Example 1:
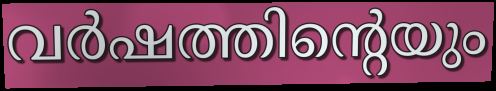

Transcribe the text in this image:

വർഷത്തിന്റെയും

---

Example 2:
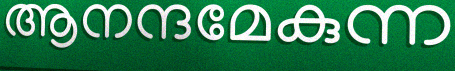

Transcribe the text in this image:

ആനന്ദമേകുന്ന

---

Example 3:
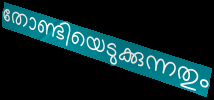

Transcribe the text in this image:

തോണ്ടിയെടുക്കുന്നതും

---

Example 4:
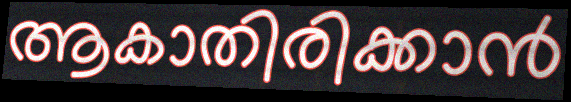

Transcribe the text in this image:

ആകാതിരിക്കാൻ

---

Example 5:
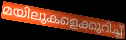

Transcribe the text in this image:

മയിലുകളെക്കുറിച്ച്